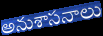
అనుశాసనాలు